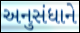
અનુસંધાને